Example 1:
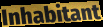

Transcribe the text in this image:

Inhabitant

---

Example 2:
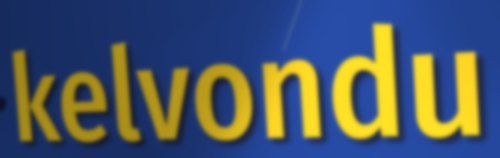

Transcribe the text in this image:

kelvondu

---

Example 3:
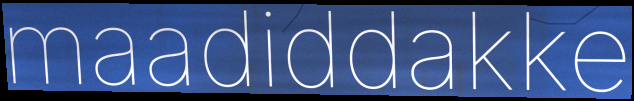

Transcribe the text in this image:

maadiddakke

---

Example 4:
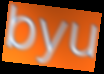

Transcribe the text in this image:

byu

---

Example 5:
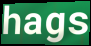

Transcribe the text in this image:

hags